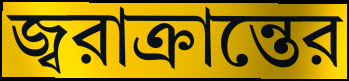
জ্বরাক্রান্তের